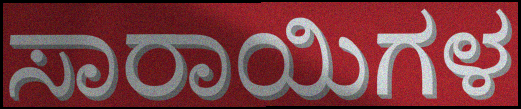
ಸಾರಾಯಿಗಳ